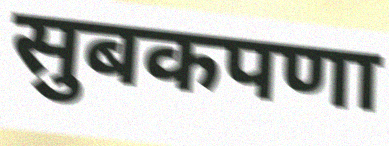
सुबकपणा